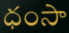
ధంసా